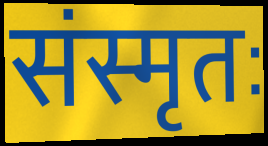
संस्मृतः